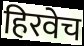
हिरवेच